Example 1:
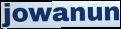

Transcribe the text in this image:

jowanun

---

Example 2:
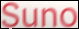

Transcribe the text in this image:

Suno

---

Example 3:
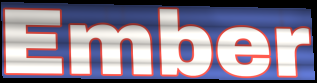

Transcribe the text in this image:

Ember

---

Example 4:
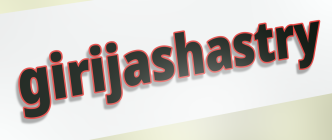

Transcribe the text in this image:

girijashastry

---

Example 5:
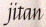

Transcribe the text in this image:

jitan